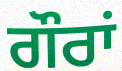
ਗੌਰਾਂ